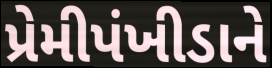
પ્રેમીપંખીડાને